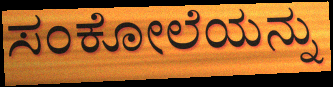
ಸಂಕೋಲೆಯನ್ನು